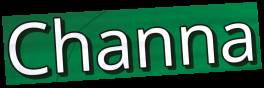
Channa